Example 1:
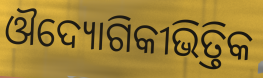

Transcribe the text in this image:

ଔଦ୍ୟୋଗିକୀଭିତ୍ତିକ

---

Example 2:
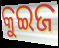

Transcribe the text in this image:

କୁଇଜ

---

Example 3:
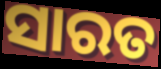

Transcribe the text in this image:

ସାରତ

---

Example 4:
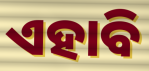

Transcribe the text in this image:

ଏହାବି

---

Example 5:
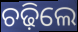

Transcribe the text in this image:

ଚଢ଼ିଲେ